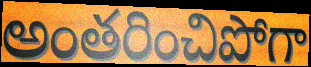
అంతరించిపోగా